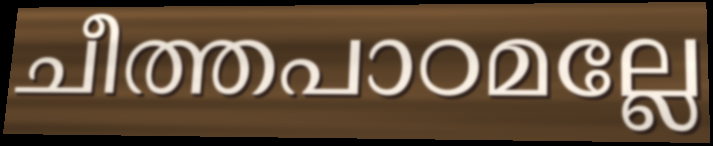
ചീത്തപാഠമല്ലേ